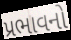
પ્રભાવનો